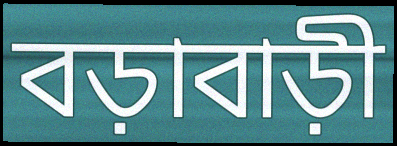
বড়াবাড়ী